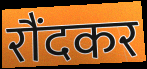
रौंदकर